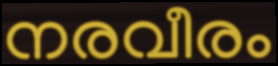
നരവീരം